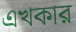
এখকার